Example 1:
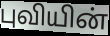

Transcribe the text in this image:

புவியின்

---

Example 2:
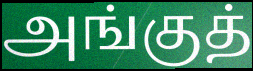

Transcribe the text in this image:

அங்குத்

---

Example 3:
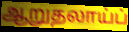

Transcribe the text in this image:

ஆறுதலாய்ப்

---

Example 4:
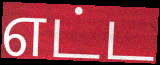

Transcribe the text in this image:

எட்ட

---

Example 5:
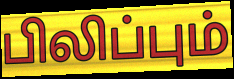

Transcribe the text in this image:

பிலிப்பும்